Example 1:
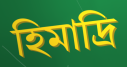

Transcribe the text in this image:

হিমাদ্রি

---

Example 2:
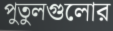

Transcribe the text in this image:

পুতুলগুলোর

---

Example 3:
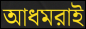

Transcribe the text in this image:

আধমরাই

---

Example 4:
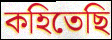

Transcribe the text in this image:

কহিতেছি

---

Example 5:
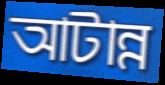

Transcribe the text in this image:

আটান্ন